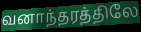
வனாந்தரத்திலே